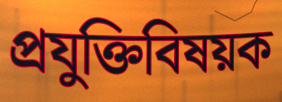
প্রযুক্তিবিষয়ক